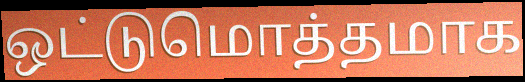
ஒட்டுமொத்தமாக